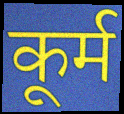
कूर्म